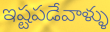
ఇష్టపడేవాళ్ళు